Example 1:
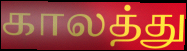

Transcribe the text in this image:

காலத்து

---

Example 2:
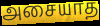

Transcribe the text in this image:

அசையாத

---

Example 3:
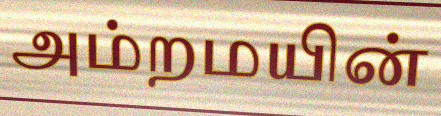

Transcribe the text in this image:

அம்றமயின்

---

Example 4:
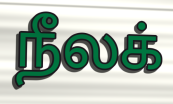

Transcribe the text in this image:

நீலக்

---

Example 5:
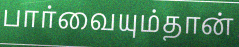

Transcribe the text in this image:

பார்வையும்தான்